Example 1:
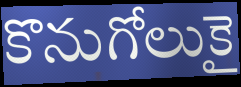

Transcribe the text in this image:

కొనుగోలుకై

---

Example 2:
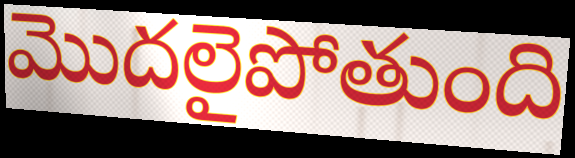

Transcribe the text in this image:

మొదలైపోతుంది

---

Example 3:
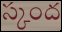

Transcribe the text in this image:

స్కంద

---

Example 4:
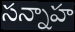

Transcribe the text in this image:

సన్నాహ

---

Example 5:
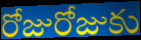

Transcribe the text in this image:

రోజురోజుకు